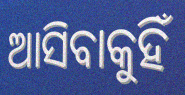
ଆସିବାକୁହିଁ